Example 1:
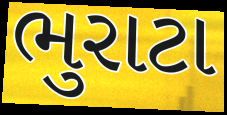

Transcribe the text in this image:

ભુરાટા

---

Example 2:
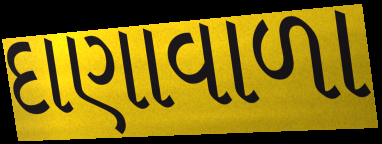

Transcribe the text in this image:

દાણાવાળા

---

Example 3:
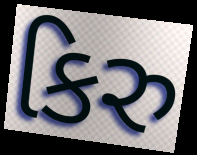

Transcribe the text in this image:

કિરુ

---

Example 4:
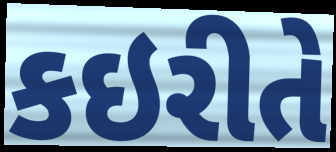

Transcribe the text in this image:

કઇરીતે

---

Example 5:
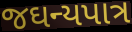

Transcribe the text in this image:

જઘન્યપાત્ર